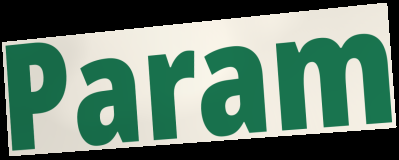
Param